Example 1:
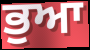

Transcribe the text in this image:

ਭੁਆ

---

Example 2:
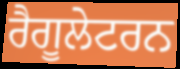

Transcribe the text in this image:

ਰੈਗੂਲੇਟਰਨ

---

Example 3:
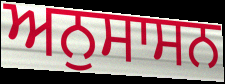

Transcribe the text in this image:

ਅਨੁਸਾਸਨ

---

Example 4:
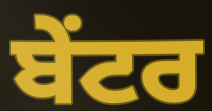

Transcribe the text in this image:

ਬੇਂਟਰ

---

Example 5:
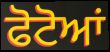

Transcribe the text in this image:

ਫੋਟੋਆਂ